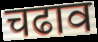
चढाव